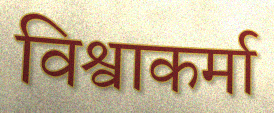
विश्वाकर्मा